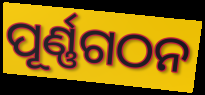
ପୂର୍ଣ୍ଣଗଠନ